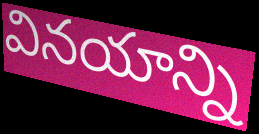
వినయాన్ని